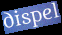
dispel